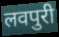
लवपुरी